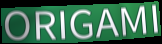
ORIGAMI